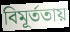
বিমূর্ততায়